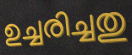
ഉച്ചരിച്ചതു